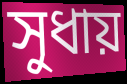
সুধায়